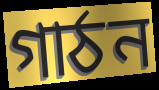
গাঠন